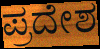
ಪ್ರದೇಶ